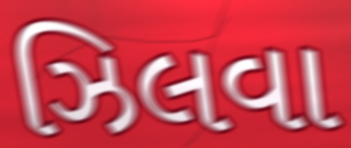
ઝિલવા